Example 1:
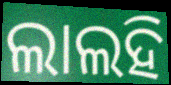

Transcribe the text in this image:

ଲାଲହି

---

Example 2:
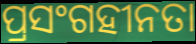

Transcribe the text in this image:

ପ୍ରସଂଗହୀନତା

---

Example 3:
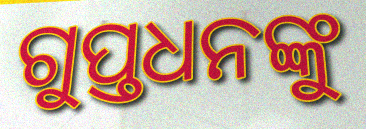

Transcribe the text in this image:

ଗୁପ୍ତଧନଙ୍କୁ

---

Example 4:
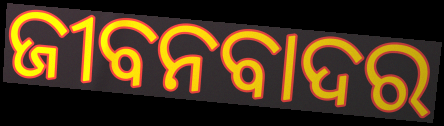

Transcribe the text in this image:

ଜୀବନବାଦର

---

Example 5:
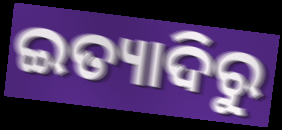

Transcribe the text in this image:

ଇତ୍ୟାଦିରୁ